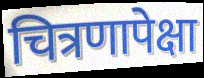
चित्रणापेक्षा